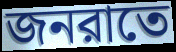
জনরাতে